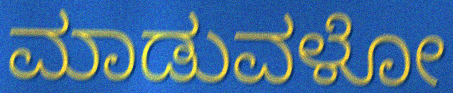
ಮಾಡುವಳೋ